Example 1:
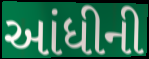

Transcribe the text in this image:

આંધીની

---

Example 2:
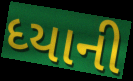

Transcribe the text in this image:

ધ્યાની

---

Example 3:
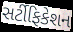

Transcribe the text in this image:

સર્ટીફિકેશન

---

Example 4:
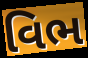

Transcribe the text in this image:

વિભ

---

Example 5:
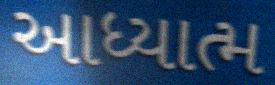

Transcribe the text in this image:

આધ્યાત્મ